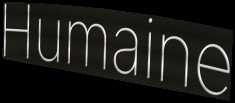
Humaine